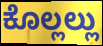
ಕೊಲ್ಲಲ್ಲು